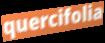
quercifolia